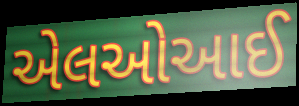
એલઓઆઈ